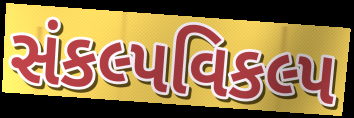
સંકલ્પવિકલ્પ